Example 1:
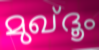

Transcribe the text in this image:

മുഖ്ദൂം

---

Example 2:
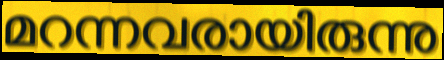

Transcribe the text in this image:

മറന്നവരായിരുന്നു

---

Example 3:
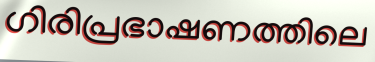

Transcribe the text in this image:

ഗിരിപ്രഭാഷണത്തിലെ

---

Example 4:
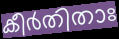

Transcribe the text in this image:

കീർതിതാഃ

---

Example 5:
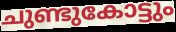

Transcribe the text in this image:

ചുണ്ടുകോട്ടും